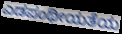
ಎಡಪಂಥೀಯತೆಯ